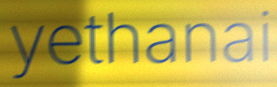
yethanai